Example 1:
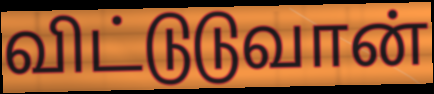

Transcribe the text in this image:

விட்டுடுவான்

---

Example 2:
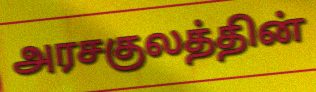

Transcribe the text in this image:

அரசகுலத்தின்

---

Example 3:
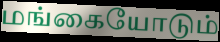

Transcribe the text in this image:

மங்கையோடும்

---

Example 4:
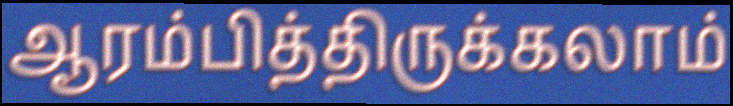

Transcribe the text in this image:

ஆரம்பித்திருக்கலாம்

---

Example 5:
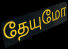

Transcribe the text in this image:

தேயுமோ